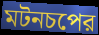
মটনচপের